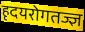
हृदयरोगतज्ज्ञ